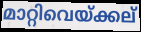
മാറ്റിവെയ്ക്കല്